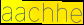
aachhe